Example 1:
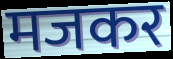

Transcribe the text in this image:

मजकर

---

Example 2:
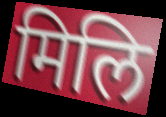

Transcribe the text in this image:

मिलि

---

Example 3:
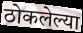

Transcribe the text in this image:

ठोकलेल्या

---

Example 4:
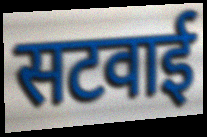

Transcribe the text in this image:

सटवाई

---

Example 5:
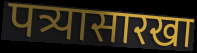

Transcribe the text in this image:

पत्र्यासारखा